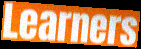
Learners